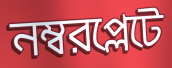
নম্বরপ্লেটে